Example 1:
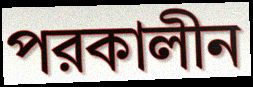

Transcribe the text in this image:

পরকালীন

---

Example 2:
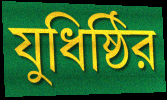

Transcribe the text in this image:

যুধিষ্ঠির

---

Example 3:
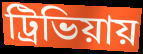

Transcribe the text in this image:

ট্রিভিয়ায়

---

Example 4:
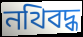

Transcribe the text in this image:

নথিবদ্ধ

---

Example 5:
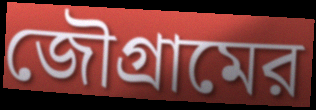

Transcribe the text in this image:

জৌগ্রামের